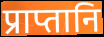
प्राप्तानि